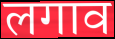
लगाव